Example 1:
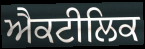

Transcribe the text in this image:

ਐਕਟੀਲਿਕ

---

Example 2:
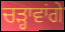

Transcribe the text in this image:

ਚੜ੍ਹਾਵਾਂਗੇ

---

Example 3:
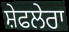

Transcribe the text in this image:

ਸ਼ੇਫਲੇਰਾ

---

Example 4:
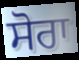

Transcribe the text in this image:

ਸੋਰਾ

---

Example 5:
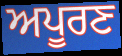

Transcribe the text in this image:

ਅਪੂਰਣ